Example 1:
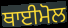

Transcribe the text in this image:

ਥਾਈਮੋਲ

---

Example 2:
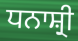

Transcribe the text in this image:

ਧਨਾਸ਼੍ਰੀ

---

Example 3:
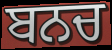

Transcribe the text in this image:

ਬਨਚ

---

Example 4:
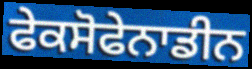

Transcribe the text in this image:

ਫੇਕਸੋਫੇਨਾਡੀਨ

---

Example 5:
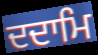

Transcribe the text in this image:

ਦਦਾਮਿ